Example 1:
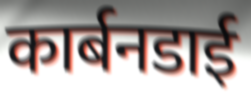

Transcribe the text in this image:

कार्बनडाई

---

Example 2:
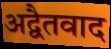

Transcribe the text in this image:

अद्वैतवाद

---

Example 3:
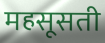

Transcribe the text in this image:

महसूसती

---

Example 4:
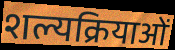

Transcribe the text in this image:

शल्यक्रियाओं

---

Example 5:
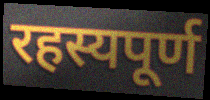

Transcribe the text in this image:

रहस्यपूर्ण